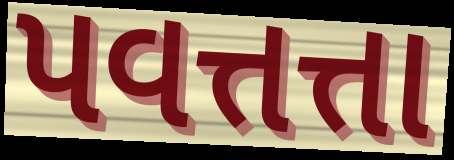
પવત્તત્તા